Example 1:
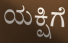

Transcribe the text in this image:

ಯಕ್ಷಿಗೆ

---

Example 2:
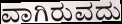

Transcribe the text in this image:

ವಾಗಿರುವದು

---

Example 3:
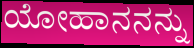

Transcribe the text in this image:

ಯೋಹಾನನನ್ನು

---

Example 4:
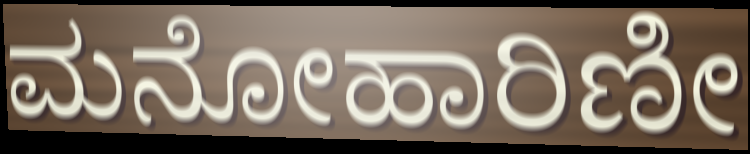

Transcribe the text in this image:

ಮನೋಹಾರಿಣೀ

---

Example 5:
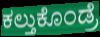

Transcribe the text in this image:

ಕಲ್ತುಕೊಂಡ್ರೆ